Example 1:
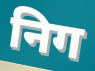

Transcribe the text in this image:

निग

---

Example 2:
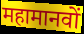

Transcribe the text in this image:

महामानवों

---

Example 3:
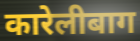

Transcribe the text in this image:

कारेलीबाग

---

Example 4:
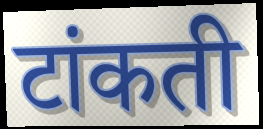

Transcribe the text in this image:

टांकती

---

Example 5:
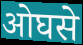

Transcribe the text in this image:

ओघसे